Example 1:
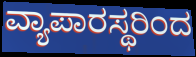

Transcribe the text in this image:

ವ್ಯಾಪಾರಸ್ಥರಿಂದ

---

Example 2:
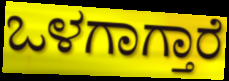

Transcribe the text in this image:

ಒಳಗಾಗ್ತಾರೆ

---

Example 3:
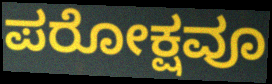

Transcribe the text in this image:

ಪರೋಕ್ಷವೂ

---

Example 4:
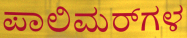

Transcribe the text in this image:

ಪಾಲಿಮರ್‌ಗಳ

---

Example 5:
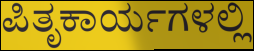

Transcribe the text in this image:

ಪಿತೃಕಾರ್ಯಗಳಲ್ಲಿ